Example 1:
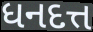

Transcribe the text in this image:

ધનદત્ત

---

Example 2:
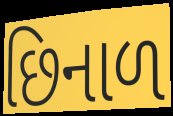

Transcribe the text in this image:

છિનાળ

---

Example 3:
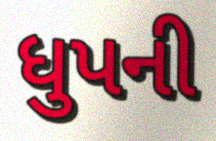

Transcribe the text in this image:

ધુપની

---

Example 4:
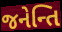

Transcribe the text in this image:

જનેન્તિ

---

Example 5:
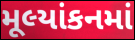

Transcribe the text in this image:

મૂલ્યાંકનમાં